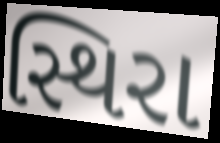
સ્થિરા